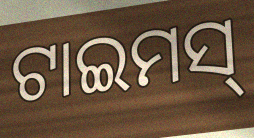
ଟାଇମସ୍